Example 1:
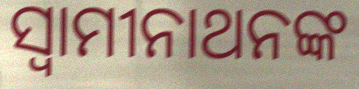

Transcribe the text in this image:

ସ୍ଵାମୀନାଥନଙ୍କ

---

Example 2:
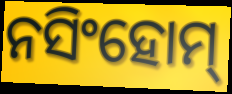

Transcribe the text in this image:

ନସିଂହୋମ୍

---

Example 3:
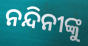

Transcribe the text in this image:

ନନ୍ଦିନୀଙ୍କୁ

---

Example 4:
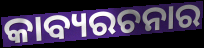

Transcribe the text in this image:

କାବ୍ୟରଚନାର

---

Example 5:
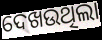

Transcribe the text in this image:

ଦେଖଉଥିଲା